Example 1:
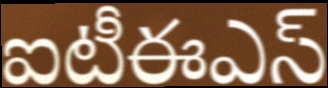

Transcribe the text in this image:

ఐటీఈఎస్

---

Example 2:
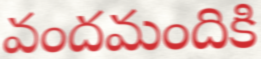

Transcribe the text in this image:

వందమందికి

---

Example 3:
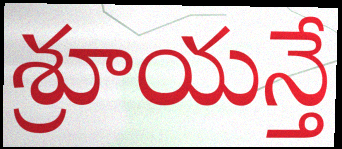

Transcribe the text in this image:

శ్రూయన్తే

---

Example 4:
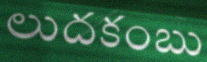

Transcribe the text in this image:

లుదకంబు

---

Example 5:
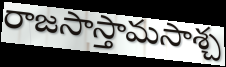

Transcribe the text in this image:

రాజసాస్తామసాశ్చ